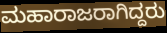
ಮಹಾರಾಜರಾಗಿದ್ದರು